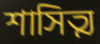
শাসিত্ম